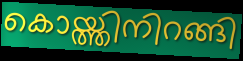
കൊയ്ത്തിനിറങ്ങി